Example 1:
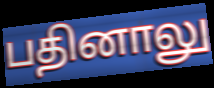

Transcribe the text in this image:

பதினாலு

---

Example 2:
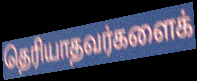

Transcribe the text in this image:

தெரியாதவர்களைக்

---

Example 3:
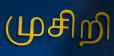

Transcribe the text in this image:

முசிறி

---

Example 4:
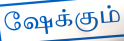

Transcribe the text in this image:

ஷேக்கும்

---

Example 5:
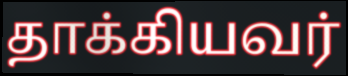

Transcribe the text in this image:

தாக்கியவர்